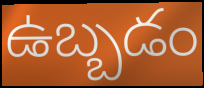
ఉబ్బడం